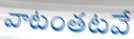
వాటంతటవే